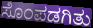
ಸೊಂಪಡಗಿತು